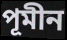
পূমীন